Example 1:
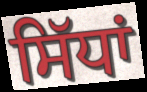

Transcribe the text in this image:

ਸਿੱਧਾਂ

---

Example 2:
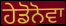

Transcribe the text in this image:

ਹੇਡੋਨੋਵਾ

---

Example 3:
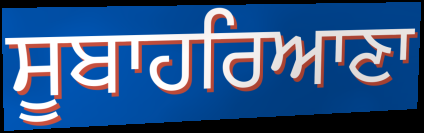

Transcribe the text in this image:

ਸੂਬਾਹਰਿਆਣਾ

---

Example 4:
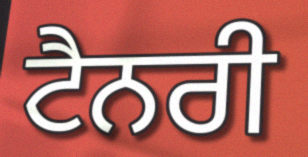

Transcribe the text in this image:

ਟੈਨਰੀ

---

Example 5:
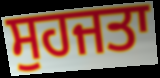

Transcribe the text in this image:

ਸੁਹਜਤਾ